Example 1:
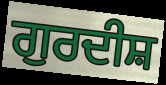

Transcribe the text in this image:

ਗੁਰਦੀਸ਼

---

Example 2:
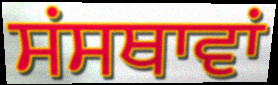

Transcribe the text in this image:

ਸਂਸਥਾਵਾਂ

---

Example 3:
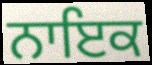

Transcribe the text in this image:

ਨਾਇਕ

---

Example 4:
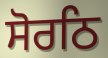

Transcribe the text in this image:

ਸੋਰਠਿ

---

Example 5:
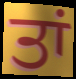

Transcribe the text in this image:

ਤਾਂ